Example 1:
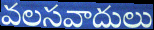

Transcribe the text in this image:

వలసవాదులు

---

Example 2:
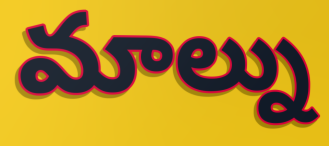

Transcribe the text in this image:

మాల్ను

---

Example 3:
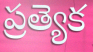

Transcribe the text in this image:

ప్రత్యెక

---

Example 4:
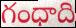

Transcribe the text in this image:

గంధాది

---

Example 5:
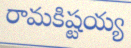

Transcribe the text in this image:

రామకిష్టయ్య